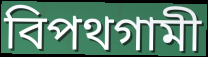
বিপথগামী